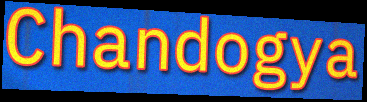
Chandogya